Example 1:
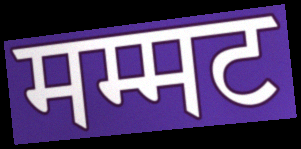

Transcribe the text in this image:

मम्मट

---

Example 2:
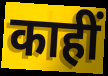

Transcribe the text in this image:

काहीं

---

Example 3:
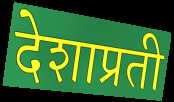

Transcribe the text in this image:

देशाप्रती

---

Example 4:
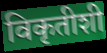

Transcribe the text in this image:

विकृतीशी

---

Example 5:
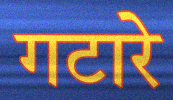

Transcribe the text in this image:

गटारे